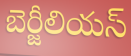
బెర్జీలియస్